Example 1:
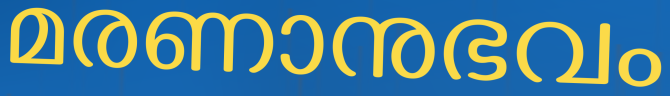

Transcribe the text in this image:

മരണാനുഭവം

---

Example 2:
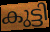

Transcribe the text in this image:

കുട്ടി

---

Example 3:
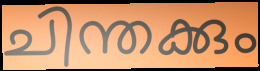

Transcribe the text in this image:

ചിന്തക്കും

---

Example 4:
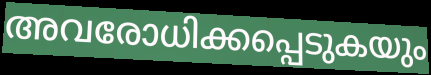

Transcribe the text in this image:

അവരോധിക്കപ്പെടുകയും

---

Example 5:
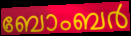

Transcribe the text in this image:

ബോംബർ